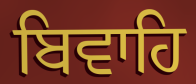
ਬਿਵਾਹਿ